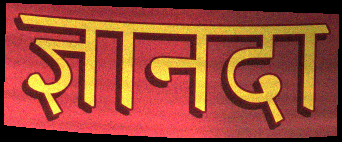
ज्ञानदा